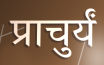
प्राचुर्यं